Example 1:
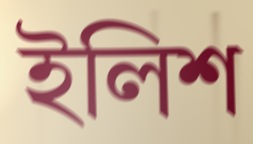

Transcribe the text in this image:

ইলিশ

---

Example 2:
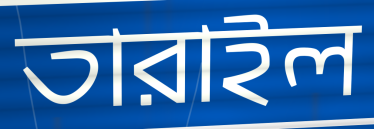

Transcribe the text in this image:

তারাইল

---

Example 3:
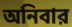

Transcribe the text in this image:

অনিবার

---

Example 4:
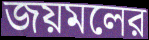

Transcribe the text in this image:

জয়মলের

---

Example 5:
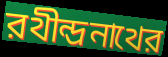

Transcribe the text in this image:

রথীন্দ্রনাথের